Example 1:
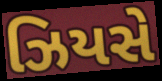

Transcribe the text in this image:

ઝિયસે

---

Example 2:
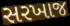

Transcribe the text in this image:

સરખાજ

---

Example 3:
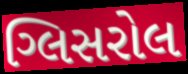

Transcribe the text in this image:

ગ્લિસરોલ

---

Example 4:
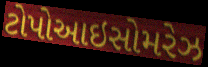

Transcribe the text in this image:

ટોપોઆઇસોમરેઝ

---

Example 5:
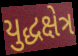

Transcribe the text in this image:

યુદ્ધક્ષેત્ર